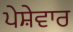
ਪੇਸ਼ੇਵਾਰ